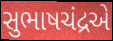
સુભાષચંદ્રએ